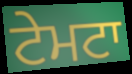
ਟੇਮਟਾ